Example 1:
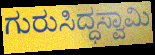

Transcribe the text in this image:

ಗುರುಸಿದ್ಧಸ್ವಾಮಿ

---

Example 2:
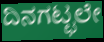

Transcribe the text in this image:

ದಿನಗಟ್ಟಲೇ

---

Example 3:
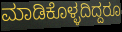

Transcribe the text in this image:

ಮಾಡಿಕೊಳ್ಳದಿದ್ದರೂ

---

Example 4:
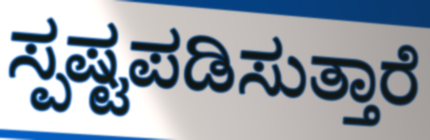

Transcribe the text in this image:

ಸ್ಪಷ್ಟಪಡಿಸುತ್ತಾರೆ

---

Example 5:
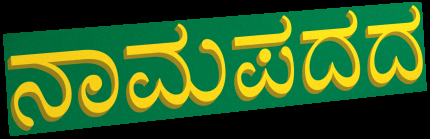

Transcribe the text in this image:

ನಾಮಪದದ